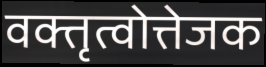
वक्तृत्वोत्तेजक